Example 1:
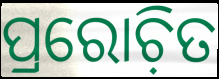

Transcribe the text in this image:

ପ୍ରରୋଚ଼ିତ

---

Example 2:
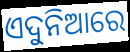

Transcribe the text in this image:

ଏଦୁନିଆରେ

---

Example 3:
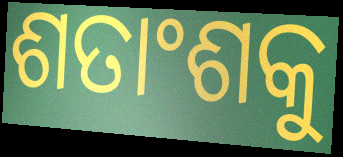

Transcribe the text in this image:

ଶତାଂଶକୁ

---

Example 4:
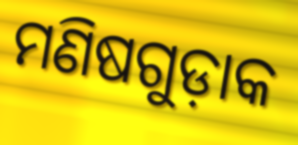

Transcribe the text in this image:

ମଣିଷଗୁଡ଼ାକ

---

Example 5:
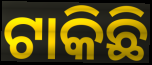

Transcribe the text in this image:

ଟାକିଛି